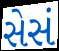
સેસં